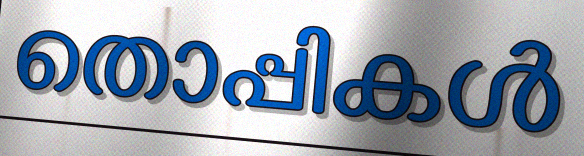
തൊപ്പികൾ